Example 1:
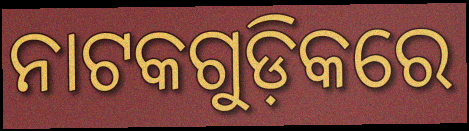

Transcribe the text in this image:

ନାଟକଗୁଡ଼ିକରେ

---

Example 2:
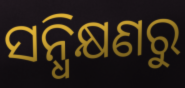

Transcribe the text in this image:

ସନ୍ଧିକ୍ଷଣରୁ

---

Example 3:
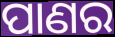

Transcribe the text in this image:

ପାଣର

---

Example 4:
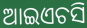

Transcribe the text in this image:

ଆଇଏଚସି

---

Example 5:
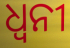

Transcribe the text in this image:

ଧ୍ବନୀ